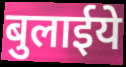
बुलाईये